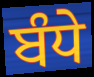
ਬੰਧੇ